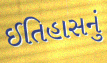
ઈતિહાસનું